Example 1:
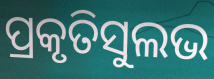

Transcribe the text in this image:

ପ୍ରକୃତିସୁଲଭ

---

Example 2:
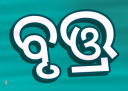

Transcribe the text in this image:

ବୃତ୍ତ୍ର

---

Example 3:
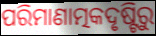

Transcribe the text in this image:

ପରିମାଣାତ୍ମକଦୃଷ୍ଟିରୁ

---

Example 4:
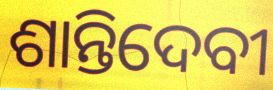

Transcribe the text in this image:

ଶାନ୍ତିଦେବୀ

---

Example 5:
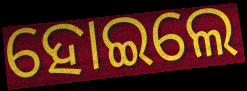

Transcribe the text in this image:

ହୋଇଲେ